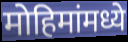
मोहिमांमध्ये